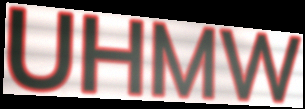
UHMW